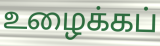
உழைக்கப்